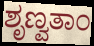
ಶೃಣ್ವತಾಂ